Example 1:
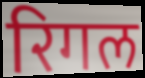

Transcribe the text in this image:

रिगल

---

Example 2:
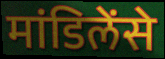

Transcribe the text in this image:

मांडिलेंसे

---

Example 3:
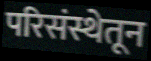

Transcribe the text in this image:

परिसंस्थेतून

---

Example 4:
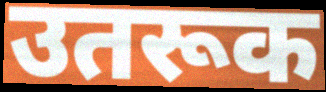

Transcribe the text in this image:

उतरूक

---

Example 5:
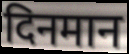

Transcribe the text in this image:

दिनमान